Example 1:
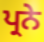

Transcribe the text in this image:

ਪ੍ਰਨੇ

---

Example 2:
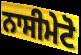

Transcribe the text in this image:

ਨਾਸੀਮੇਟੋ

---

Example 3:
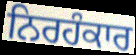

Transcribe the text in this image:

ਨਿਰਹੰਕਾਰ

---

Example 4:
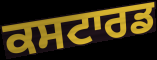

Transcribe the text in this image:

ਕਸਟਾਰਡ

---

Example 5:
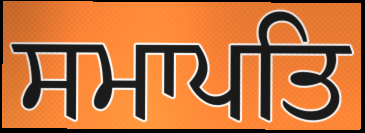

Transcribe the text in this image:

ਸਮਾਪਤਿ